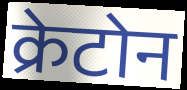
क्रेटोन